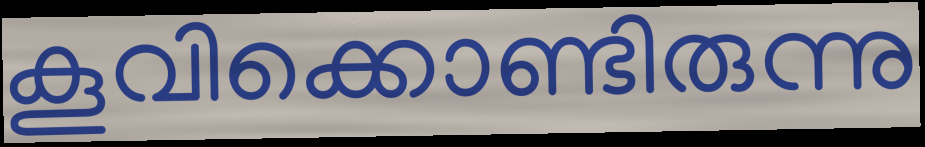
കൂവിക്കൊണ്ടിരുന്നു